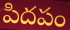
పిదపం